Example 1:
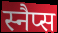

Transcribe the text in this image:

स्नैप्स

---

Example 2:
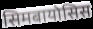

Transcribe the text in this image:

सिमबायोसिस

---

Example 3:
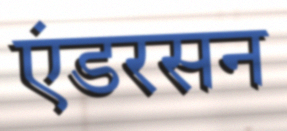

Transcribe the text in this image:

एंडरसन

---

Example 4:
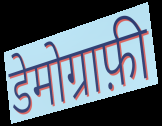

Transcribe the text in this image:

डेमोग्राफ़ी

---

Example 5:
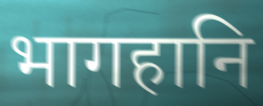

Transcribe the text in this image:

भागहानि